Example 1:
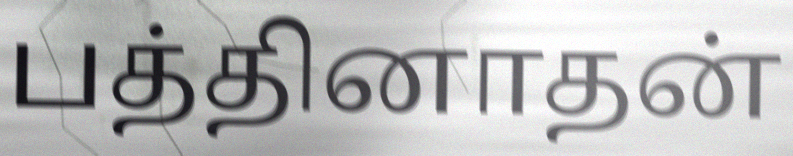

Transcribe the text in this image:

பத்தினாதன்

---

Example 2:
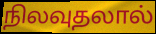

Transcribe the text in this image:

நிலவுதலால்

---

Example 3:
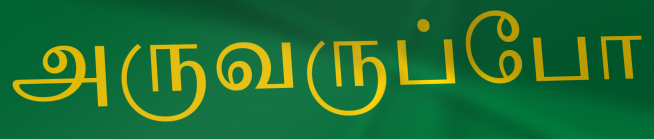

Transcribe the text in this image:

அருவருப்போ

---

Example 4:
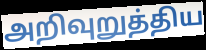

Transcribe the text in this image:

அறிவுறுத்திய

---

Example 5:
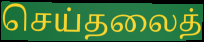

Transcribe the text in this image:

செய்தலைத்